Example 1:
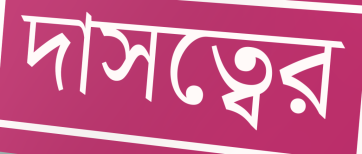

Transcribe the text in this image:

দাসত্বের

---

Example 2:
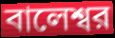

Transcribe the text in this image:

বালেশ্বর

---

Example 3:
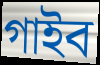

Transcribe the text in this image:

গাইব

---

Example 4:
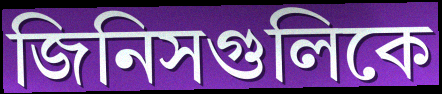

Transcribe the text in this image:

জিনিসগুলিকে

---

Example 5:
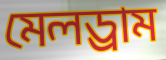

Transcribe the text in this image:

মেলড্রাম